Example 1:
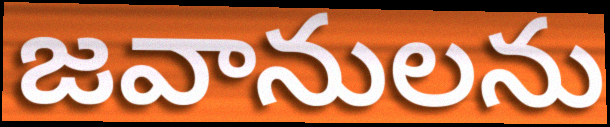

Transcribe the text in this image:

జవానులను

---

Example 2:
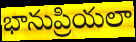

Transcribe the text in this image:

భానుప్రియలా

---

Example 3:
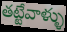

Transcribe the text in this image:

తట్టేవాళ్ళు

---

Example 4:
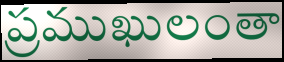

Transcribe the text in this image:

ప్రముఖులంతా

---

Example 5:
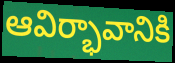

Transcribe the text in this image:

ఆవిర్భావానికి